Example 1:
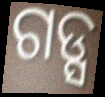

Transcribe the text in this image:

ଗଡ୍ସ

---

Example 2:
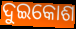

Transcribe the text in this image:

ଦୁଇକୋଶ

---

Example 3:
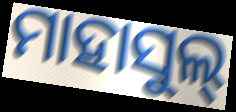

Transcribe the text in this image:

ମାହାସୁଲ୍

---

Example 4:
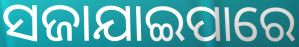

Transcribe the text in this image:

ସଜାଯାଇପାରେ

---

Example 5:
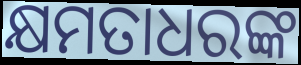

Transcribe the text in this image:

କ୍ଷମତାଧରଙ୍କ